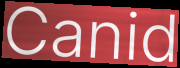
Canid